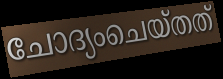
ചോദ്യംചെയ്തത്